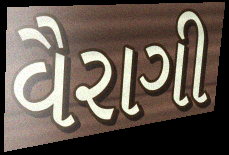
વૈરાગી